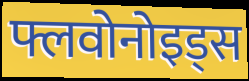
फ्लवोनोइड्स